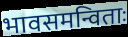
भावसमन्विताः